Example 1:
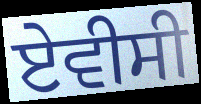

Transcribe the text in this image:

ਏਵੀਸੀ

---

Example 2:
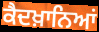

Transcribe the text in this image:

ਕੈਦਖ਼ਾਨਿਆਂ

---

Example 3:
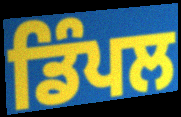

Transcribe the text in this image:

ਡਿੰਪਲ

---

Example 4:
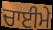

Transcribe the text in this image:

ਚਾਈਮੇ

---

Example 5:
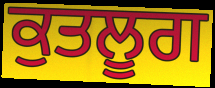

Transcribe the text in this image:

ਕੁਤਲੂਗ